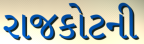
રાજકોટની